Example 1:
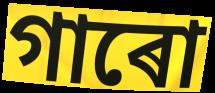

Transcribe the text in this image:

গাৰো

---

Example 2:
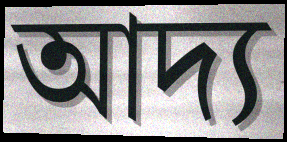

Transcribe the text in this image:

আদ্য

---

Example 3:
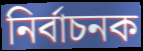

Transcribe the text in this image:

নিৰ্বাচনক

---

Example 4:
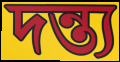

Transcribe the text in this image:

দন্ত্য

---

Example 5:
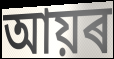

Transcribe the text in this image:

আয়ৰ